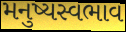
મનુષ્યસ્વભાવ